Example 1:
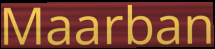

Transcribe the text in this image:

Maarban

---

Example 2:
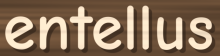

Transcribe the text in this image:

entellus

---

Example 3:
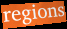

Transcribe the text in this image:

regions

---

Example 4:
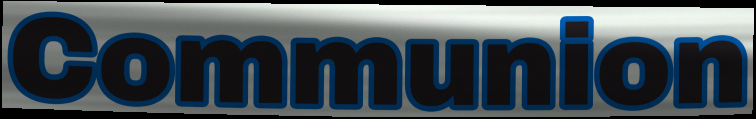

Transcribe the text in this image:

Communion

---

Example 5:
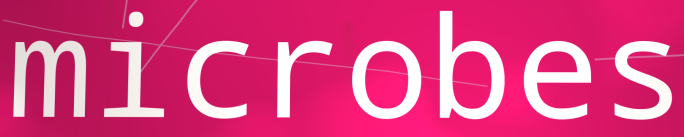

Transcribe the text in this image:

microbes